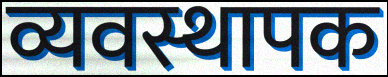
व्यवस्थापक